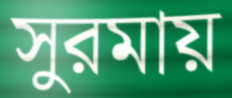
সুরমায়